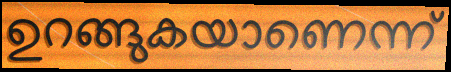
ഉറങ്ങുകയാണെന്ന്